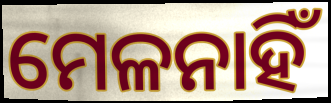
ମେଳନାହିଁ